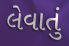
લેવાતું